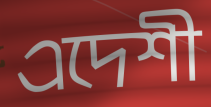
এদেশী